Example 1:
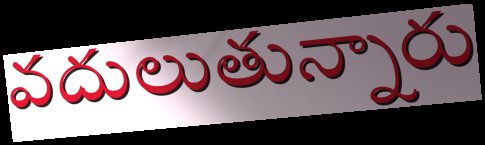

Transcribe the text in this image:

వదులుతున్నారు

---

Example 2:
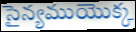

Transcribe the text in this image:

సైన్యముయొక్క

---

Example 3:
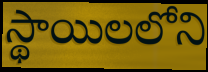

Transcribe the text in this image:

స్థాయిలలోని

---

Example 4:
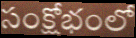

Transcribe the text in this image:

సంక్షోభంలో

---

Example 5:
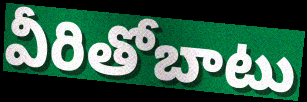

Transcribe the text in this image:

వీరితోబాటు